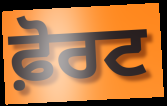
ਫ਼ੋਰਟ